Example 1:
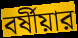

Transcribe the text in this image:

বর্ষীয়ার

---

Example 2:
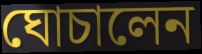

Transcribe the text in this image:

ঘোচালেন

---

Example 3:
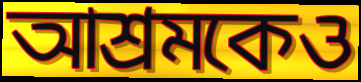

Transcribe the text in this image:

আশ্রমকেও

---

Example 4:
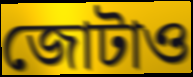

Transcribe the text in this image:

জোটাও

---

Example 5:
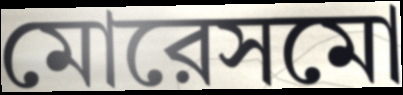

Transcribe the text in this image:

মোরেসমো